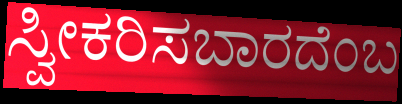
ಸ್ವೀಕರಿಸಬಾರದೆಂಬ